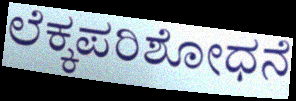
ಲೆಕ್ಕಪರಿಶೋಧನೆ